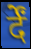
र्दें